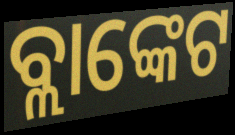
ବ୍ଲାଙ୍କେଟ